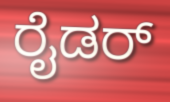
ರೈಡರ್